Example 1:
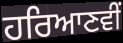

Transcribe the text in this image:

ਹਰਿਆਣਵੀਂ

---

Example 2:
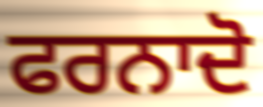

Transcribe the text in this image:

ਫਰਨਾਦੋ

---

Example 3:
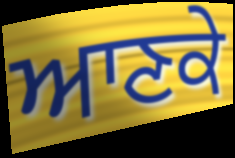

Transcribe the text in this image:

ਆਣਕੇ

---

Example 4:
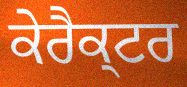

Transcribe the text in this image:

ਕੇਰੈਕ੍ਟਰ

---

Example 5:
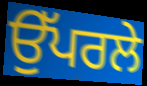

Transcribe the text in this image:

ਉੱਪਰਲੇ